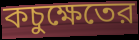
কচুক্ষেতের